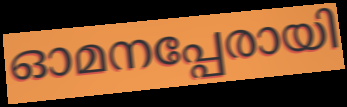
ഓമനപ്പേരായി